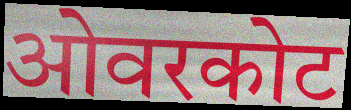
ओवरकोट